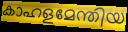
കാഹളമേന്തിയ